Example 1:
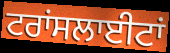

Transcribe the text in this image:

ਟਰਾਂਸਲਾਈਟਾਂ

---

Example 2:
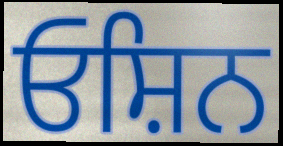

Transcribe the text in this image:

ਓਸ਼ਿਨ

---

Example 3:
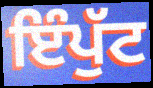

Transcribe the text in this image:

ਇੰਪੁੱਟ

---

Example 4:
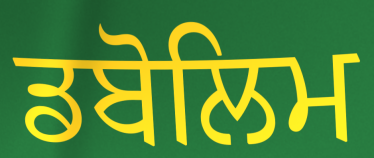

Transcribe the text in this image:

ਡਬੋਲਿਮ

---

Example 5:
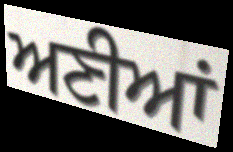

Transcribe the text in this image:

ਅਣੀਆਂ